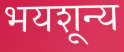
भयशून्य